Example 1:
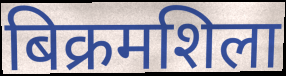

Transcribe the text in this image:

बिक्रमशिला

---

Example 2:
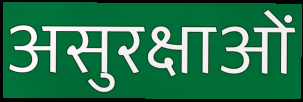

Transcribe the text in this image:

असुरक्षाओं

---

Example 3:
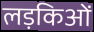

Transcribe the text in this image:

लड़किओं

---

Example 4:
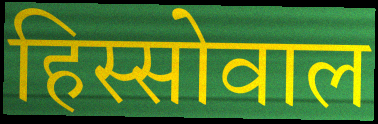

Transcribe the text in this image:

हिस्सोवाल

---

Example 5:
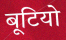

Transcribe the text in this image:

बूटियो